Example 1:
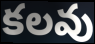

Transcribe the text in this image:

కలవు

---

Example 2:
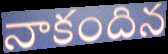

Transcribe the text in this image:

నాకందిన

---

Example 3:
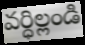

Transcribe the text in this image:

వర్ధిల్లండి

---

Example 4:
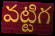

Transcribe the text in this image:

వట్టిగ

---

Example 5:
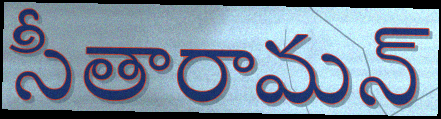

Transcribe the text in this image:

సీతారామన్